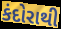
કંદોરાથી